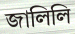
জালিলি